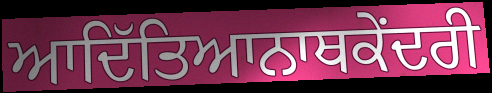
ਆਦਿੱਤਿਆਨਾਥਕੇਂਦਰੀ